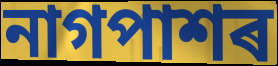
নাগপাশৰ